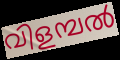
വിളമ്പൽ